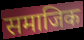
समाजिक